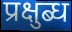
प्रक्षुब्ध